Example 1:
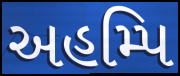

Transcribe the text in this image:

અહમ્પિ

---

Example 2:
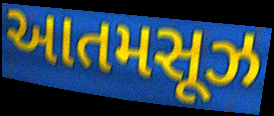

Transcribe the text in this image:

આતમસૂઝ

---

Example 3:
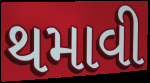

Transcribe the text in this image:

થમાવી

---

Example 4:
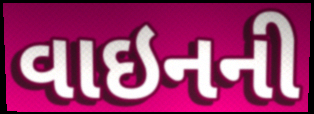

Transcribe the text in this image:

વાઇનની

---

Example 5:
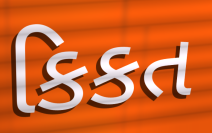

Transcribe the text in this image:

કિકત